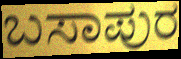
ಬಸಾಪುರ